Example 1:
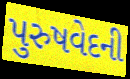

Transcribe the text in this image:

પુરુષવેદની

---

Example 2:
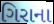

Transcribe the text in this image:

ગિરાના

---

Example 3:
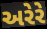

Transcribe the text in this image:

અરેરે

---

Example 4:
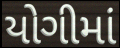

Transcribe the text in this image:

યોગીમાં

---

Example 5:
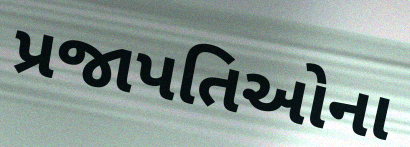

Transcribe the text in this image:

પ્રજાપતિઓના